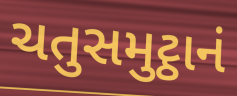
ચતુસમુટ્ઠાનં